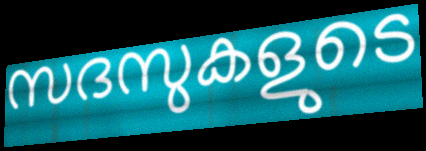
സദസുകളുടെ